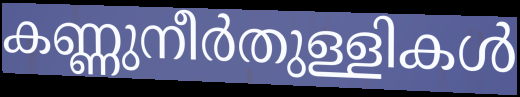
കണ്ണുനീർതുള്ളികൾ